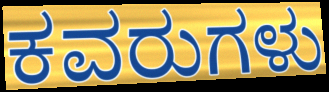
ಕವರುಗಳು